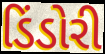
ડિંડોરી